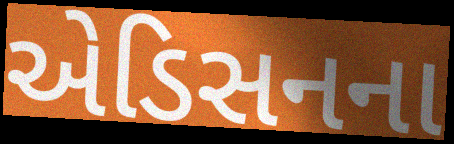
એડિસનના